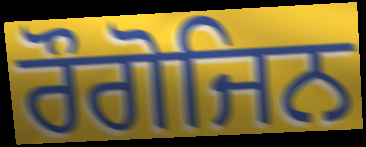
ਰੌਗੋਜਿਨ